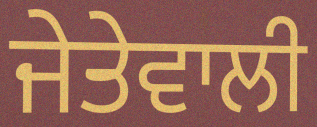
ਜੇਤੇਵਾਲੀ